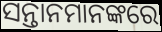
ସନ୍ତାନମାନଙ୍କରେ